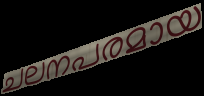
ചലനപരമായ